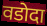
वडोदा